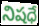
నిషధే